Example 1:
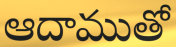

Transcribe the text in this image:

ఆదాముతో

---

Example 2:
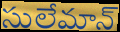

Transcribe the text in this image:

సులేమాన్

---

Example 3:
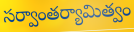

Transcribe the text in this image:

సర్వాంతర్యామిత్వం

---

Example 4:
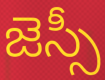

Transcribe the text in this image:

జెస్సీ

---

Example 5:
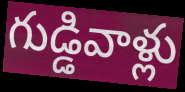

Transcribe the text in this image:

గుడ్డివాళ్లు